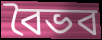
বৈভব